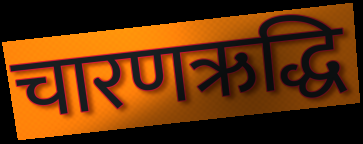
चारणऋद्धि